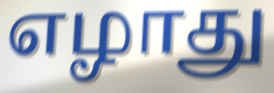
எழாது